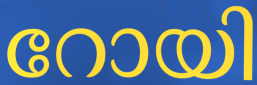
റോയി